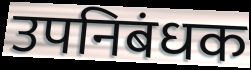
उपनिबंधक